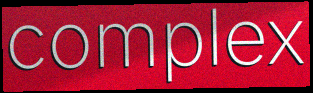
complex